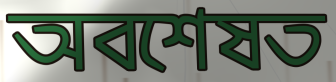
অবশেষত